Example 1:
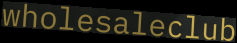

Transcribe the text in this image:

wholesaleclub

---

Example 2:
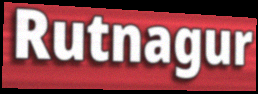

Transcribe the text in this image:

Rutnagur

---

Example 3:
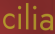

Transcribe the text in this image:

cilia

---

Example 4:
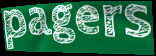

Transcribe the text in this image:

pagers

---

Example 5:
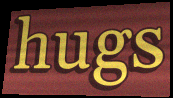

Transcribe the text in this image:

hugs